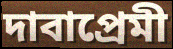
দাবাপ্রেমী